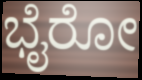
ಭೈರೋ